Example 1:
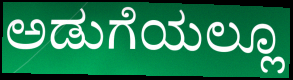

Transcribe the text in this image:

ಅಡುಗೆಯಲ್ಲೂ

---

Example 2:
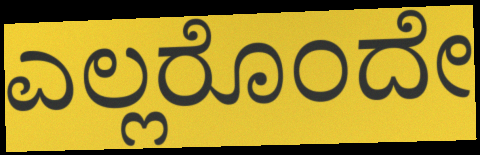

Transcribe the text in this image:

ಎಲ್ಲರೊಂದೇ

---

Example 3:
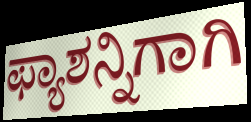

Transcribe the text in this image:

ಫ್ಯಾಶನ್ನಿಗಾಗಿ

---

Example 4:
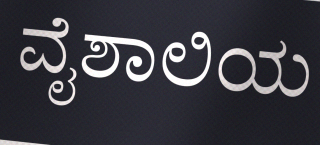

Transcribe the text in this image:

ವೈಶಾಲಿಯ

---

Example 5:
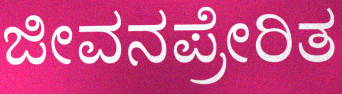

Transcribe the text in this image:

ಜೀವನಪ್ರೇರಿತ